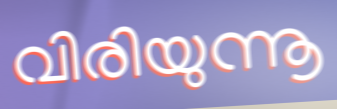
വിരിയുന്നൂ